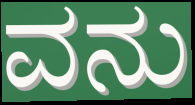
ವನು